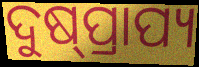
ଦୁଷ୍‌ପ୍ରାପ୍ୟ